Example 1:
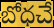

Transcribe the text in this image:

బోధచే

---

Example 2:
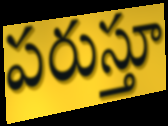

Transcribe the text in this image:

పరుస్తూ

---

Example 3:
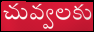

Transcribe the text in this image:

చువ్వలకు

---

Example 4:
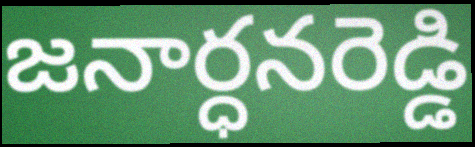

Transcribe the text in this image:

జనార్ధనరెడ్డి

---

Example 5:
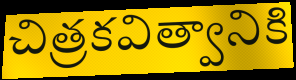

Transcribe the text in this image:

చిత్రకవిత్వానికి